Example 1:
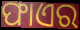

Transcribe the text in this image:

ଫାଏର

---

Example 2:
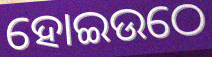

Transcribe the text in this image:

ହୋଇଉଠେ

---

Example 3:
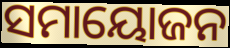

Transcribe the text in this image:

ସମାୟୋଜନ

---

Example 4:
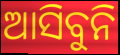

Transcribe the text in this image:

ଆସିବୁନି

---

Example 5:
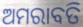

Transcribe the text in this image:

ଅମରାବତି